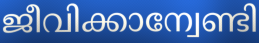
ജീവിക്കാന്വേണ്ടി